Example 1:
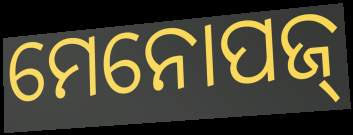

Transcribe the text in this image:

ମେନୋପଜ୍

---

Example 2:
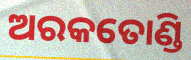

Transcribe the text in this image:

ଅରକତୋଣ୍ଡି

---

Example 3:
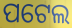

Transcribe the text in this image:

ପଟେଲ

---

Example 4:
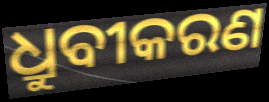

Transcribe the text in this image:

ଧ୍ରୁବୀକରଣ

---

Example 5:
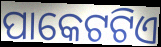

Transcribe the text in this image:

ପାକେଟଟିଏ